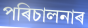
পৰিচালনাৰ